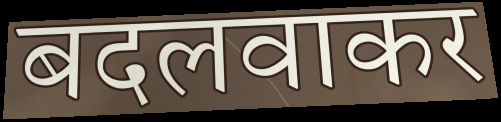
बदलवाकर